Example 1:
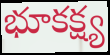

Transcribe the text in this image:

భూకక్ష్య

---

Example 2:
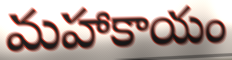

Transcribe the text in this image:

మహాకాయం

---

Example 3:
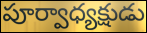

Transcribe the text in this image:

పూర్వాధ్యక్షుడు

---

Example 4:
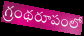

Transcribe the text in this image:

గ్రంథరూపంలో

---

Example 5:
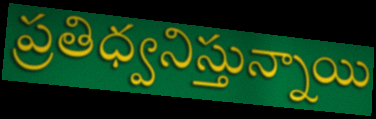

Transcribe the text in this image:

ప్రతిధ్వనిస్తున్నాయి